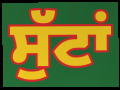
ਸੁੱਟਾਂ